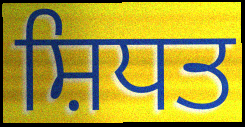
ਸ਼ਿਧਤ